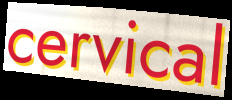
cervical